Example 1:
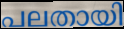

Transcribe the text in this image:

പലതായി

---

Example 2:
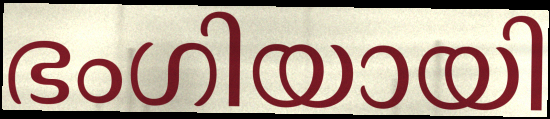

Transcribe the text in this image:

ഭംഗിയായി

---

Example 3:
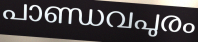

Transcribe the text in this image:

പാണ്ഡവപുരം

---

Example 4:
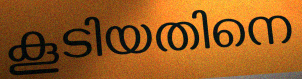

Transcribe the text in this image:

കൂടിയതിനെ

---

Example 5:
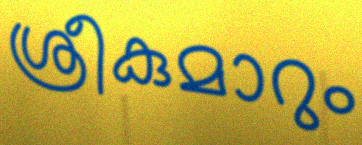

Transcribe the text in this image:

ശ്രീകുമാറും